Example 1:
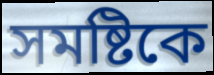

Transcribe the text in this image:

সমষ্টিকে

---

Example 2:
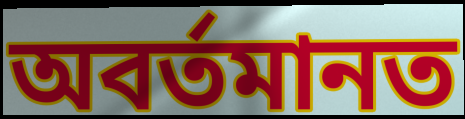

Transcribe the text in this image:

অবৰ্তমানত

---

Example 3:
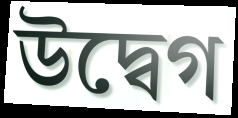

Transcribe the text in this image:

উদ্বেগ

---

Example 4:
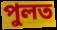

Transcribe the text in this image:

পুলত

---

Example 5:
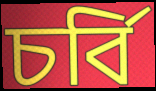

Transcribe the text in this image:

চৰ্বি